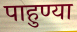
पाहुण्या